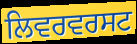
ਲਿਵਰਵਰਸਟ